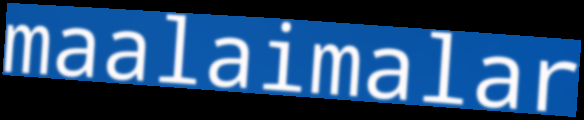
maalaimalar